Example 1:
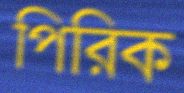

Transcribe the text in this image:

পিরিক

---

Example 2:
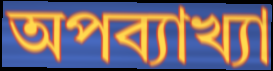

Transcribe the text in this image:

অপব্যাখ্যা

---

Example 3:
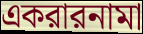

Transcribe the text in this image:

একরারনামা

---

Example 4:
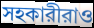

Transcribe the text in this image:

সহকারীরাও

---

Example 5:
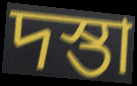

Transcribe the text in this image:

দস্তা